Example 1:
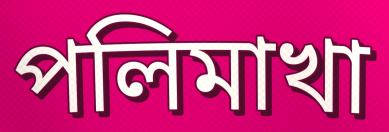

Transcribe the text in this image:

পলিমাখা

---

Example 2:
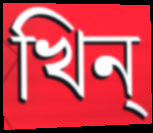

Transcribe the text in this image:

খিন্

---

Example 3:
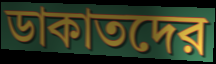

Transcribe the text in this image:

ডাকাতদের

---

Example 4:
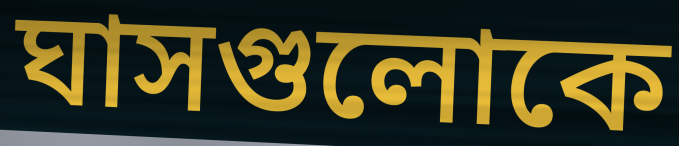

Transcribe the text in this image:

ঘাসগুলোকে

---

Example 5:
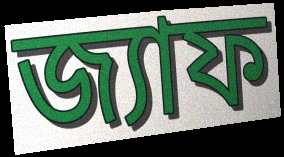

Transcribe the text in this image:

জ্যাফ